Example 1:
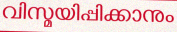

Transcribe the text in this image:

വിസ്മയിപ്പിക്കാനും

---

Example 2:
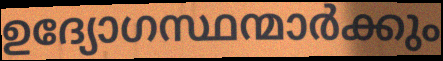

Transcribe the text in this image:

ഉദ്യോഗസ്ഥന്മാർക്കും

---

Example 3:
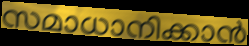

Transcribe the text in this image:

സമാധാനിക്കാൻ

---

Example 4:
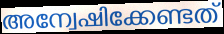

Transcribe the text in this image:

അന്വേഷിക്കേണ്ടത്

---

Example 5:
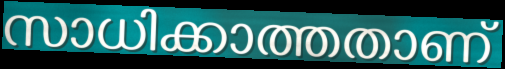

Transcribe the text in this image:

സാധിക്കാത്തതാണ്